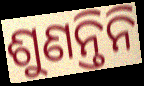
ଶୁଣନ୍ତିନି